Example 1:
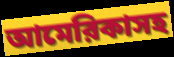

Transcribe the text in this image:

আমেরিকাসহ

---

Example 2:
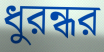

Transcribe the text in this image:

ধুরন্ধর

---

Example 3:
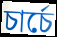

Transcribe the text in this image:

চার্চে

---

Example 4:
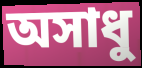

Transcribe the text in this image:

অসাধু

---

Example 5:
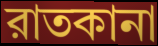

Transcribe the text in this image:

রাতকানা